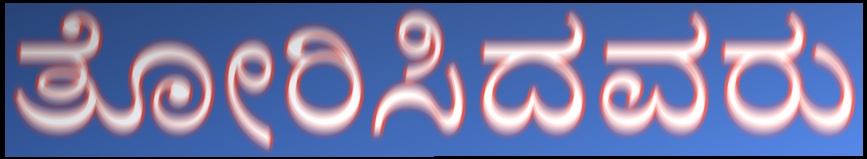
ತೋರಿಸಿದವರು